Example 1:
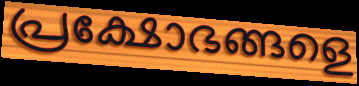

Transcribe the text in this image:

പ്രക്ഷോഭങ്ങളെ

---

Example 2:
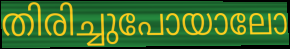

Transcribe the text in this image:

തിരിച്ചുപോയാലോ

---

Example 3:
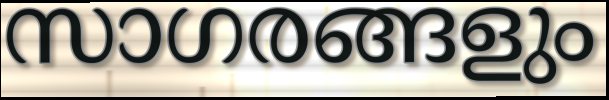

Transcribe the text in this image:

സാഗരങ്ങളും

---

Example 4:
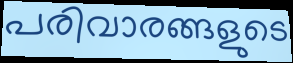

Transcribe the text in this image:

പരിവാരങ്ങളുടെ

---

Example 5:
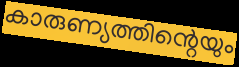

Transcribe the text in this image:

കാരുണ്യത്തിന്റെയും